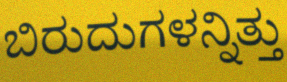
ಬಿರುದುಗಳನ್ನಿತ್ತು